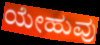
ಯೇಹುವು